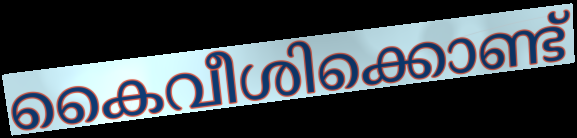
കൈവീശിക്കൊണ്ട്